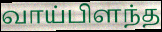
வாய்பிளந்த